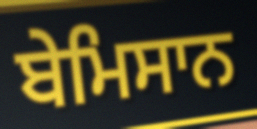
ਬੇਮਿਸਾਨ